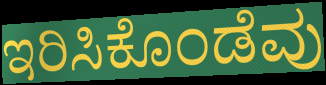
ಇರಿಸಿಕೊಂಡೆವು